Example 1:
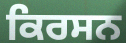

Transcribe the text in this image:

ਕਿਰਸਨ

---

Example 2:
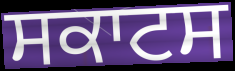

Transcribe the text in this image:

ਸਕਾਟਸ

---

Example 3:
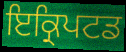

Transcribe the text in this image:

ਇਕ੍ਰਿਪਟਡ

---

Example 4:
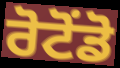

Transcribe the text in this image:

ਰੋਟੋਂਡੋ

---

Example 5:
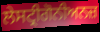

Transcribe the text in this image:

ਲੇਸਟ੍ਰੀਗੋਨੀਅਨਜ਼